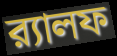
র‍্যালফ